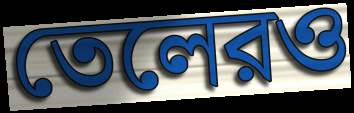
তেলেরও